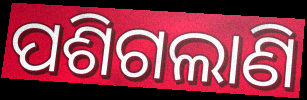
ପଶିଗଲାଣି